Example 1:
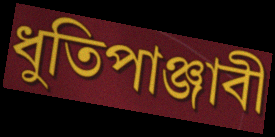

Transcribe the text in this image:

ধুতিপাঞ্জাবী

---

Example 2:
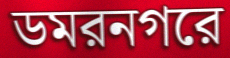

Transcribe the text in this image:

ডমরনগরে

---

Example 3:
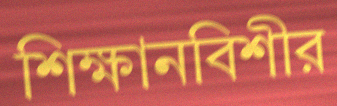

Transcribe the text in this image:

শিক্ষানবিশীর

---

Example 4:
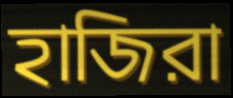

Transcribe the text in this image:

হাজিরা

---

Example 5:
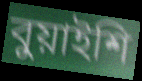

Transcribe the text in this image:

বুয়াইশি